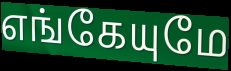
எங்கேயுமே